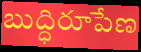
బుద్ధిరూపేణ